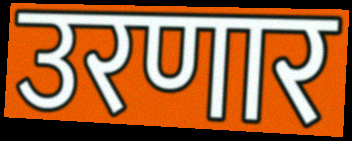
उरणार